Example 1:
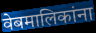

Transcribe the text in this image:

वेबमालिकांना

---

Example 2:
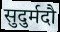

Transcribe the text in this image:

सुदुर्मदौ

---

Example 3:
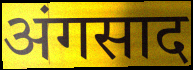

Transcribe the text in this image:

अंगसाद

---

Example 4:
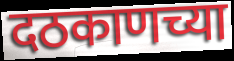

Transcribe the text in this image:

दठकाणच्या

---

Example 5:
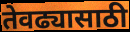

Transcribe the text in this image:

तेवढ्यासाठी